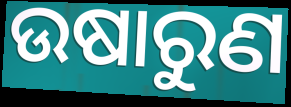
ଉଷାରୁଣ